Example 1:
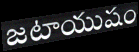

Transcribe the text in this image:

జటాయుషం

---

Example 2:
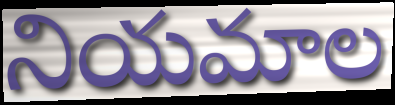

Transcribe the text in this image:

నియమాల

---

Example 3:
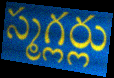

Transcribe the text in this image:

స్మగ్లర్లు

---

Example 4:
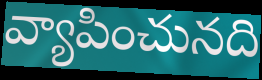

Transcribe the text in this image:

వ్యాపించునది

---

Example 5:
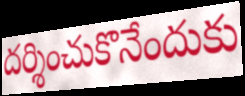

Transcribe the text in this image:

దర్శించుకొనేందుకు